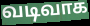
வடிவாக